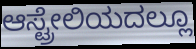
ಆಸ್ಟ್ರೇಲಿಯದಲ್ಲೂ